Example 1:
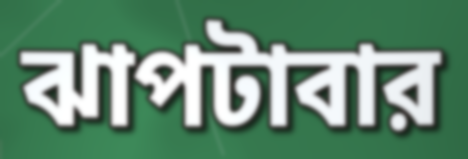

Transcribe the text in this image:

ঝাপটাবার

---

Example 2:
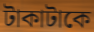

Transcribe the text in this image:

টাকাটাকে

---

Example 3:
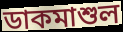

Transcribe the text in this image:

ডাকমাশুল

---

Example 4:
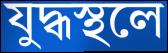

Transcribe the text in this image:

যুদ্ধস্থলে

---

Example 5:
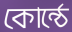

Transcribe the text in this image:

কোন্ঠে